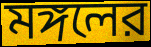
মঙ্গলের